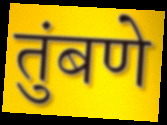
तुंबणे